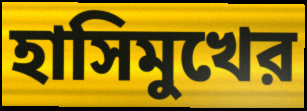
হাসিমুখের